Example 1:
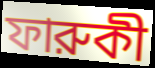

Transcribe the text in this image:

ফাৰুকী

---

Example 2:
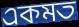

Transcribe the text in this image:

একমত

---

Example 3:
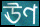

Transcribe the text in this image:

ঊণ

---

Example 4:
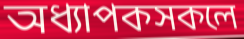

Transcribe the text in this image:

অধ্যাপকসকলে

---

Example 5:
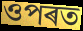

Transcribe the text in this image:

ওপৰত